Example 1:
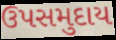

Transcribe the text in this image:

ઉપસમુદાય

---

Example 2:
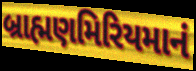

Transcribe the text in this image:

બ્રાહ્મણમિરિયમાનં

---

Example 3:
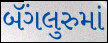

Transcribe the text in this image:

બૅંગલુરુમાં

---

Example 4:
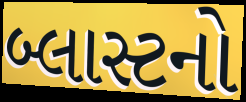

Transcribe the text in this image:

બ્લાસ્ટનો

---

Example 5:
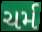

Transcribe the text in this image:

ચર્મ